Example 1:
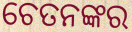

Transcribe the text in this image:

ଚେତନଙ୍କର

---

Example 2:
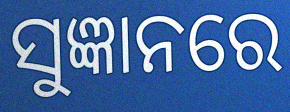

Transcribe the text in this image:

ସୁଜ୍ଞାନରେ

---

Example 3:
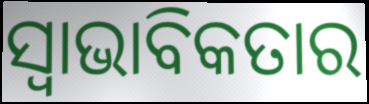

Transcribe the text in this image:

ସ୍ୱାଭାବିକତାର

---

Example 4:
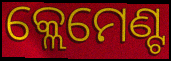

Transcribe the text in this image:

କ୍ଲେମେଣ୍ଟ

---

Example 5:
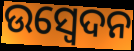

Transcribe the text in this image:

ଉସ୍ୱେଦନ